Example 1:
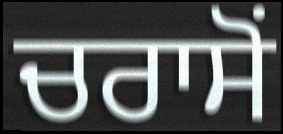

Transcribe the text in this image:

ਚਰਾਸੋਂ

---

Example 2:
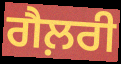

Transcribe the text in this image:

ਗੈਲ਼ਰੀ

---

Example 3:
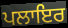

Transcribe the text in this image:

ਪਲਾਇਰ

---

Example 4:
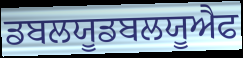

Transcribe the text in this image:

ਡਬਲਯੂਡਬਲਯੂਐਫ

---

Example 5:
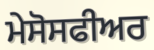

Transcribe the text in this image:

ਮੇਸੋਸਫੀਅਰ